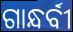
ଗାନ୍ଧର୍ବୀ